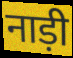
नाड़ी